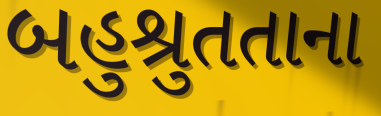
બહુશ્રુતતાના